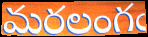
మరలంగఁ